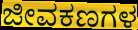
ಜೀವಕಣಗಳ